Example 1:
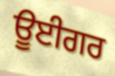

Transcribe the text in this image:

ਊਈਗਰ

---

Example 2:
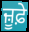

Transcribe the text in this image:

ਜ਼ੂਫ਼ੇ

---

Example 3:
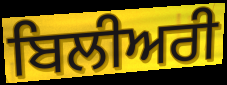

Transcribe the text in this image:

ਬਿਲੀਅਰੀ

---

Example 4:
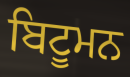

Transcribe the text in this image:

ਬਿਟੂਮਨ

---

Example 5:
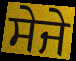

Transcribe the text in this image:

ਸੇਜੇ